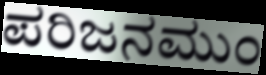
ಪರಿಜನಮುಂ